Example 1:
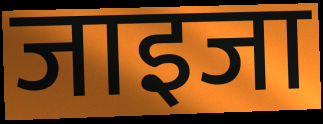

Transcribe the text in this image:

जाइजा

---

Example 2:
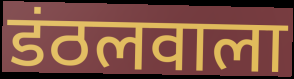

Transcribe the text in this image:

डंठलवाला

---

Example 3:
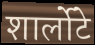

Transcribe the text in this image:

शार्लोटे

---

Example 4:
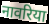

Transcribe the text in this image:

नावरिया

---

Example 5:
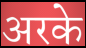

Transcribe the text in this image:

अरके